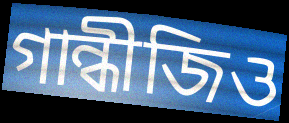
গান্ধীজিও